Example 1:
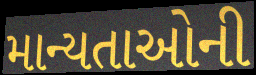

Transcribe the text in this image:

માન્યતાઓની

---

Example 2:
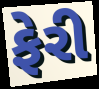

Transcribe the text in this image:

ફેરી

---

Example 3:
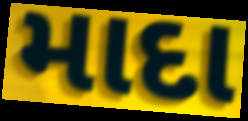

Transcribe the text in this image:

માદા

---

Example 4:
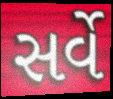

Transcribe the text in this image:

સર્વે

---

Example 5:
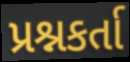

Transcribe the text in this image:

પ્રશ્નકર્તા